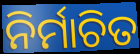
ନିର୍ମାଚିତ